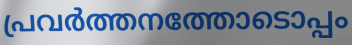
പ്രവർത്തനത്തോടൊപ്പം